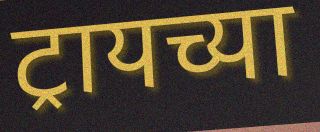
ट्रायच्या